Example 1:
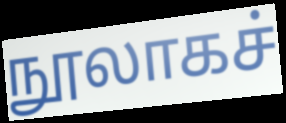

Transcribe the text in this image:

நூலாகச்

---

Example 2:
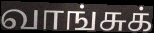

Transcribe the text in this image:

வாங்சுக்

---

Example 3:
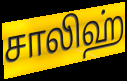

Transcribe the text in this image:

சாலிஹ்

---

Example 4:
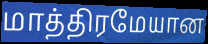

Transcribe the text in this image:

மாத்திரமேயான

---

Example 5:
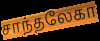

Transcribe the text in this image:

சாந்தலேகா